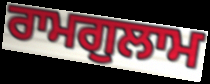
ਰਾਮਗੁਲਾਮ